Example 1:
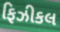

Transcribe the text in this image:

ફિઝીકલ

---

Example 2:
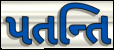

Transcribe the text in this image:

પતન્તિ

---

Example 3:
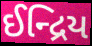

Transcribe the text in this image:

ઈન્દ્રિય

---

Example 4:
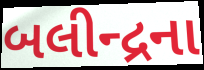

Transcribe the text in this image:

બલીન્દ્રના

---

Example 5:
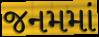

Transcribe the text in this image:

જનમમાં